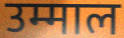
उम्माल